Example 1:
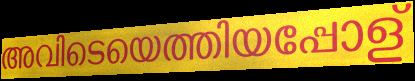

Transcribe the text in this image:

അവിടെയെത്തിയപ്പോള്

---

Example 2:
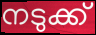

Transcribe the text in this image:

നടുക്ക്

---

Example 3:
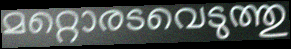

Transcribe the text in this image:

മറ്റൊരടവെടുത്തു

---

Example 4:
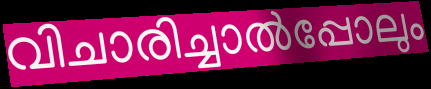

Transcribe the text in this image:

വിചാരിച്ചാൽപ്പോലും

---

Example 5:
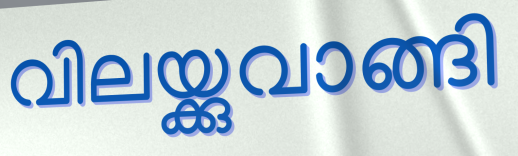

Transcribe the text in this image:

വിലയ്ക്കുവാങ്ങി